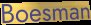
Boesman